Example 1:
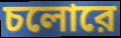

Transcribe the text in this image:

চলোরে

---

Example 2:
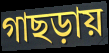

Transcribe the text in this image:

গাছড়ায়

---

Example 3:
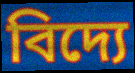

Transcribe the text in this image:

বিদ্যে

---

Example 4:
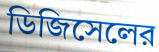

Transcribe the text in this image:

ডিজিসেলের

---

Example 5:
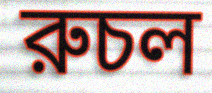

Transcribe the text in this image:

রুচল